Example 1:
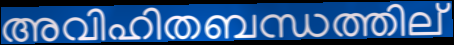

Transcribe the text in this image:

അവിഹിതബന്ധത്തില്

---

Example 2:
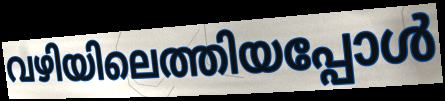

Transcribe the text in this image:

വഴിയിലെത്തിയപ്പോൾ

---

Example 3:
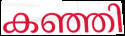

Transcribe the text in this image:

കഞ്ഞി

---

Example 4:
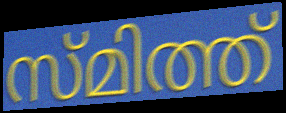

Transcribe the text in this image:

സ്മിത്ത്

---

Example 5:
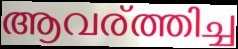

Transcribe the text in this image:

ആവര്ത്തിച്ച